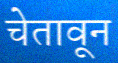
चेतावून